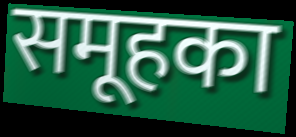
समूहका